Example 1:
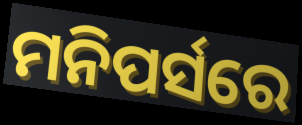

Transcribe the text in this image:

ମନିପର୍ସରେ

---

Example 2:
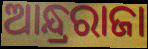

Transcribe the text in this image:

ଆନ୍ଧ୍ରରାଜା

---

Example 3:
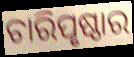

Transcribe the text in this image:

ଚାରିପୃଷ୍ଠାର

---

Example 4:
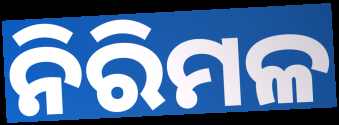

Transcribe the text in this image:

ନିରିମଳ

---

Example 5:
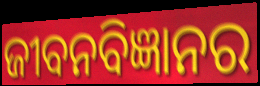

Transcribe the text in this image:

ଜୀବନବିଜ୍ଞାନର